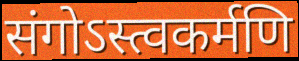
संगोऽस्त्वकर्मणि